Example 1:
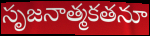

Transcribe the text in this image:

సృజనాత్మకతనూ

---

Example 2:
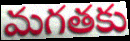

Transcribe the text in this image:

మగతకు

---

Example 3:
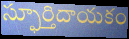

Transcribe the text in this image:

స్ఫూర్తిదాయకం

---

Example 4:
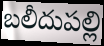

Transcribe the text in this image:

బలీదుపల్లి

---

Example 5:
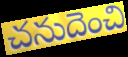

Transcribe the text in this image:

చనుదెంచి